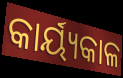
କାର୍ୟ୍ୟକାଳ